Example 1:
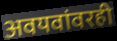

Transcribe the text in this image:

अवयवांवरही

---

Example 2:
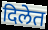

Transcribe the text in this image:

दिलेत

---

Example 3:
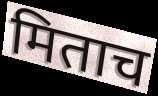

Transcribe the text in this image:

मिताच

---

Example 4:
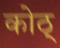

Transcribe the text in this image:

कोठ्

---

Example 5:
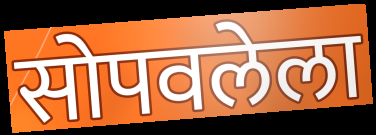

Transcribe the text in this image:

सोपवलेला